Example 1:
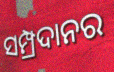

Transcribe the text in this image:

ସମ୍ପ୍ରଦାନର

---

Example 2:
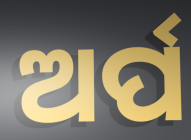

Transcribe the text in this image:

ଅର୍ପ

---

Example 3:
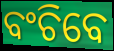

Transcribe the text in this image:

ବଂଚିବେ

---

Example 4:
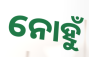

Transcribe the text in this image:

ନୋହୁଁ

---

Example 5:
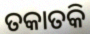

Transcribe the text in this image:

ତକାତକି